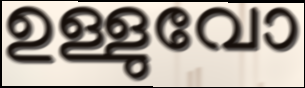
ഉള്ളുവോ